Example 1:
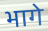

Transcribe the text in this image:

भागे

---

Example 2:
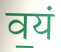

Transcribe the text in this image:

व॒यं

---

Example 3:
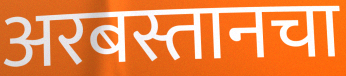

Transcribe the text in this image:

अरबस्तानचा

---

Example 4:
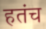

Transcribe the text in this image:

हतंच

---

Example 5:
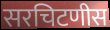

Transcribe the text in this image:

सरचिटणीस